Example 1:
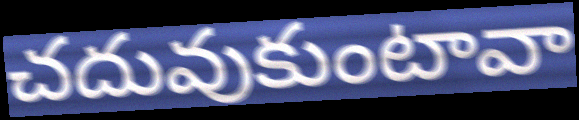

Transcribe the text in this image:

చదువుకుంటావా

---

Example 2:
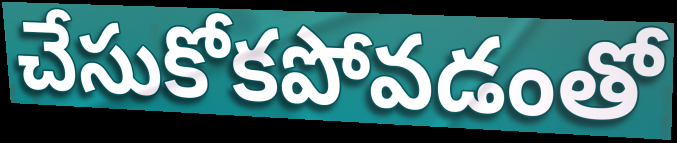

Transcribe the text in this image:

చేసుకోకపోవడంతో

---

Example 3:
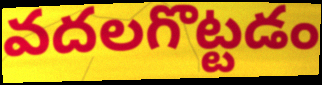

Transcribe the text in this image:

వదలగొట్టడం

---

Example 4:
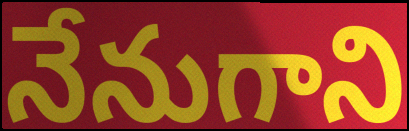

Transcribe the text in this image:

నేనుగాని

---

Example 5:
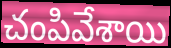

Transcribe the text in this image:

చంపివేశాయి